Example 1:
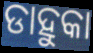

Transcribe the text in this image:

ଡାହୁକା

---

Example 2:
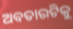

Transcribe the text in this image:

ଅବତାରଟିକୁ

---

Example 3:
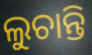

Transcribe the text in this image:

ଲୁଚାନ୍ତି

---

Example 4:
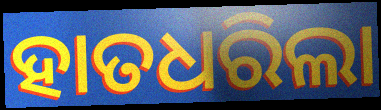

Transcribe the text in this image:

ହାତଧରିଲା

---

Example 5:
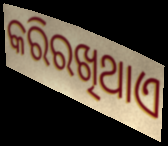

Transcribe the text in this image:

କରିରଖିଥାଏ